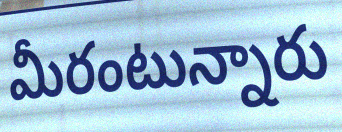
మీరంటున్నారు